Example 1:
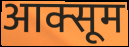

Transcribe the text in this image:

आक्सूम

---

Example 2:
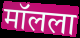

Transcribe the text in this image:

मॉलला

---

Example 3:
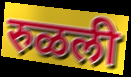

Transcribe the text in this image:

रुळली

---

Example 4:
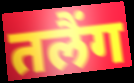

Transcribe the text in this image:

तलैंग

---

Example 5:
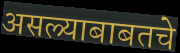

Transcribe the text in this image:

असल्याबाबतचे